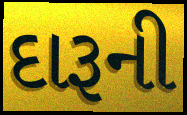
દારૂની